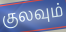
குலவும்